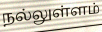
நல்லுள்ளம்